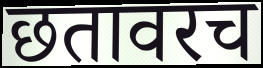
छतावरच